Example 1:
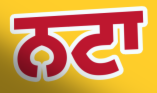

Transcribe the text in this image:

ਨਟਾ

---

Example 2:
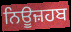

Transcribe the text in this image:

ਨਿਊਜ਼ਹਬ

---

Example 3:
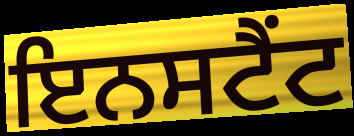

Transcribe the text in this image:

ਇਨਸਟੈਂਟ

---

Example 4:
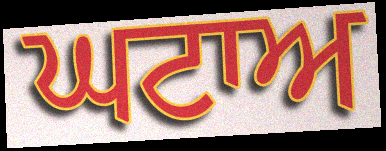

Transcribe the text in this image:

ਘਟਾਅ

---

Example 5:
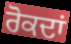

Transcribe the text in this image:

ਰੋਕਦਾਂ